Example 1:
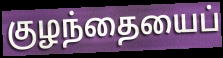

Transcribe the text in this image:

குழந்தையைப்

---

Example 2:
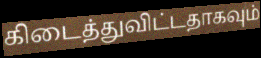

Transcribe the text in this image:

கிடைத்துவிட்டதாகவும்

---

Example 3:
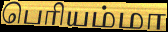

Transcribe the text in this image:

பெரியம்மா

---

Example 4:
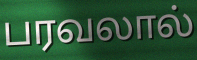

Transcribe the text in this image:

பரவலால்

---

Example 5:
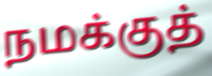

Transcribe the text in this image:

நமக்குத்